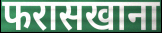
फरासखाना